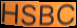
HSBC